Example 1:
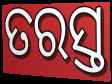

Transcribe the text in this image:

ତରସ୍ତ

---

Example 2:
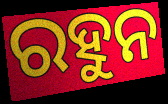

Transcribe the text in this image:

ରହୁନ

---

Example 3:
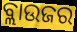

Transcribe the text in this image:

ବ୍ଲାଉଜର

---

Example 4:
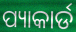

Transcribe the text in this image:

ପ୍ୟାକାର୍ଡ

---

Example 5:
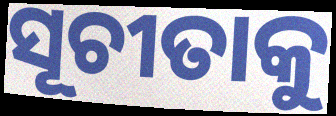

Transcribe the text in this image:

ସୂଚୀତାକୁ